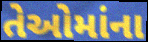
તેઓમાંના